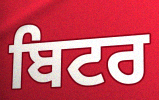
ਬਿਟਰ